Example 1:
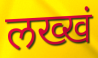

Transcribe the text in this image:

लख्खं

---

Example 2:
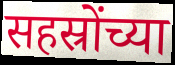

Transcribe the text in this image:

सहस्रोंच्या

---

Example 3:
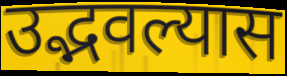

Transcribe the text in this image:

उद्भवल्यास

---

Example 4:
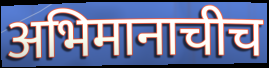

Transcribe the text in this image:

अभिमानाचीच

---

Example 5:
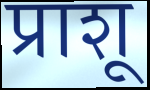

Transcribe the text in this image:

प्राशू